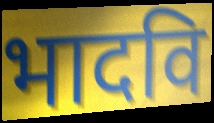
भादवि